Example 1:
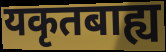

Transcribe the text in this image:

यकृतबाह्य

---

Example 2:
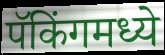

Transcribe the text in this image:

पॅकिंगमध्ये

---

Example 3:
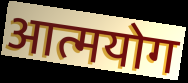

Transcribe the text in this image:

आत्मयोग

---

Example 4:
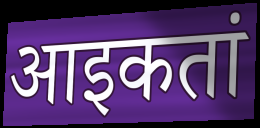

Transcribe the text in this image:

आइकतां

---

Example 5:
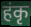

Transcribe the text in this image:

हंकृ